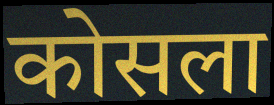
कोसला